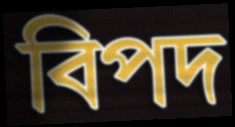
বিপদ